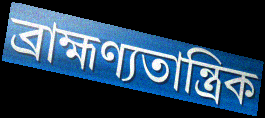
ব্রাহ্মণ্যতান্ত্রিক